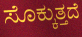
ಸೊಕ್ಕುತ್ತದೆ